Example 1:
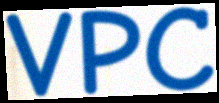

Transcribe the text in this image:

VPC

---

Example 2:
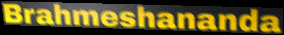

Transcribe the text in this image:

Brahmeshananda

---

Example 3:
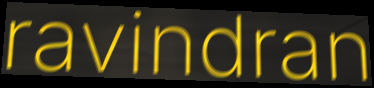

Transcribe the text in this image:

ravindran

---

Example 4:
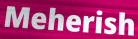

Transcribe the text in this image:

Meherish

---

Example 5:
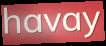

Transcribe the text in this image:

havay